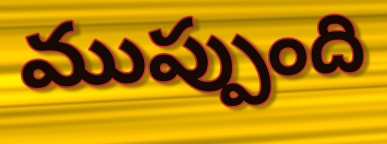
ముప్పుంది